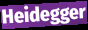
Heidegger